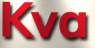
Kva